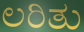
ಲರಿತು